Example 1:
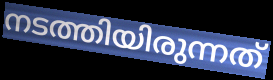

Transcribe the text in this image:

നടത്തിയിരുന്നത്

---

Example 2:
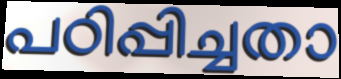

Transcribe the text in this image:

പഠിപ്പിച്ചതാ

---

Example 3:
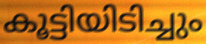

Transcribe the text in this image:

കൂട്ടിയിടിച്ചും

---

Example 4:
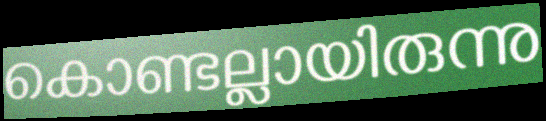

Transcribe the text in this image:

കൊണ്ടല്ലായിരുന്നു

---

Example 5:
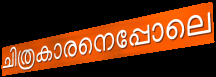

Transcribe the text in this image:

ചിത്രകാരനെപ്പോലെ